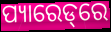
ପ୍ୟାରେଡ୍‌ରେ